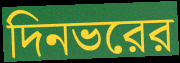
দিনভরের